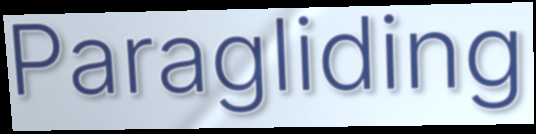
Paragliding